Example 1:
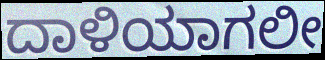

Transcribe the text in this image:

ದಾಳಿಯಾಗಲೀ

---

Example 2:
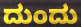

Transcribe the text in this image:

ದುಂದು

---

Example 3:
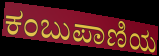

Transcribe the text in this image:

ಕಂಬುಪಾಣಿಯ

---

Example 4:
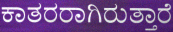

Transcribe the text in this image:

ಕಾತರರಾಗಿರುತ್ತಾರೆ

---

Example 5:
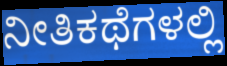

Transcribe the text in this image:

ನೀತಿಕಥೆಗಳಲ್ಲಿ